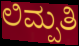
ಲಿಮ್ಪತಿ